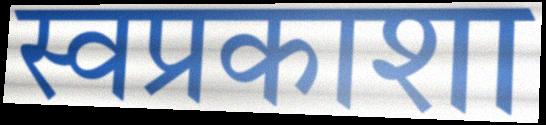
स्वप्रकाशा